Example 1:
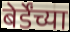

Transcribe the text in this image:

बेर्डेंच्या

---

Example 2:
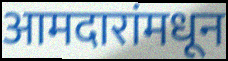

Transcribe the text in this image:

आमदारांमधून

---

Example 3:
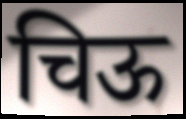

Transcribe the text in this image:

चिऊ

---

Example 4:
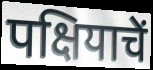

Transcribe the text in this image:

पक्षियाचें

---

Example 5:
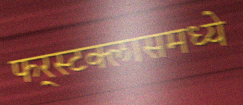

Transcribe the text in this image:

फर्स्टक्लासमध्ये